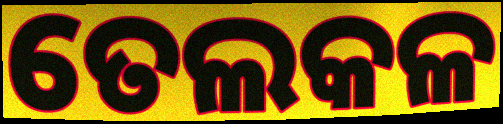
ତେଲକଳ